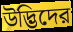
উদ্ভিদের